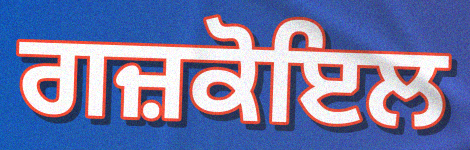
ਗਜ਼ਕੋਇਲ